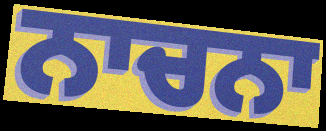
ਨਾਚਨਾ